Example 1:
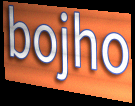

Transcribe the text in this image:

bojho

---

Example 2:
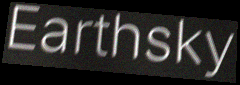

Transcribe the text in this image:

Earthsky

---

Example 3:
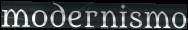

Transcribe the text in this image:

modernismo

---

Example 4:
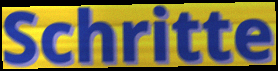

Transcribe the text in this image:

Schritte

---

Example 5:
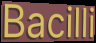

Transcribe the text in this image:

Bacilli